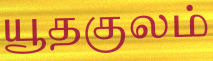
யூதகுலம்